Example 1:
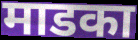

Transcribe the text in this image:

माडका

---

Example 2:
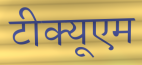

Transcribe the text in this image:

टीक्यूएम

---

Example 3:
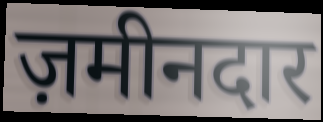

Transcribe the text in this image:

ज़मीनदार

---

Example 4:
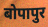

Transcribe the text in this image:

बोपापुर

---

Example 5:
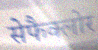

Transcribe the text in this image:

सेफैक्लोर